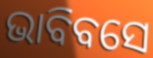
ଭାବିବସେ